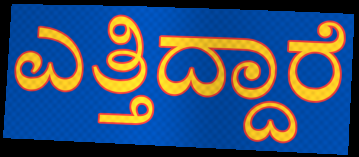
ಎತ್ತಿದ್ದಾರೆ